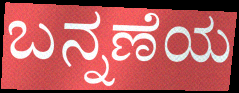
ಬನ್ನಣೆಯ